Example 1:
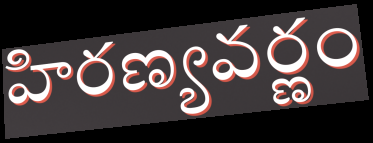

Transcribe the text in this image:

హిరణ్యవర్ణం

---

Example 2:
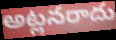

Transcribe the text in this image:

అట్లనరాదు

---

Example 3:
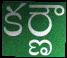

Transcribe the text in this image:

కర్ణౌ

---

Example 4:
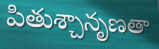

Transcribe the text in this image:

పితుశ్చానృణతా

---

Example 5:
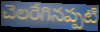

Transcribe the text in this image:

చెలరేగినప్పటి